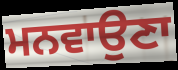
ਮਨਵਾਉਣਾ